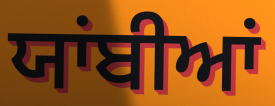
ਯਾਂਬੀਆਂ